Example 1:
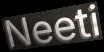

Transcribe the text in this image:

Neeti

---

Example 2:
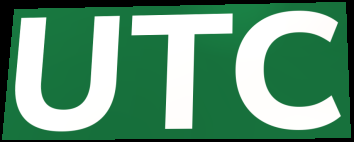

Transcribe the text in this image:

UTC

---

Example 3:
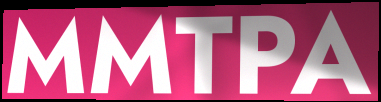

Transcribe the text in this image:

MMTPA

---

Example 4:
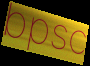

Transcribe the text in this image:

bpsc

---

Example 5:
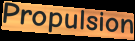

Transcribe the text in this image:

Propulsion